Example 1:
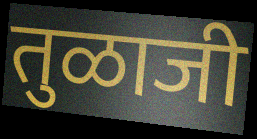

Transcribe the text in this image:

तुळाजी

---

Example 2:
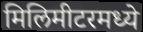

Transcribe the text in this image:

मिलिमीटरमध्ये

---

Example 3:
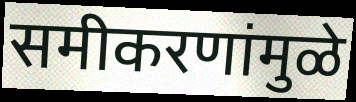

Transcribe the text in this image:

समीकरणांमुळे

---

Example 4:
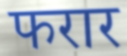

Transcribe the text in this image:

फरार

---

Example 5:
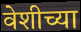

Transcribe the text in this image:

वेशीच्या